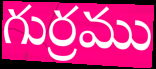
గుర్రము